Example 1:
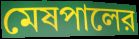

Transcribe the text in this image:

মেষপালের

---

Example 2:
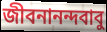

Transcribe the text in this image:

জীবনানন্দবাবু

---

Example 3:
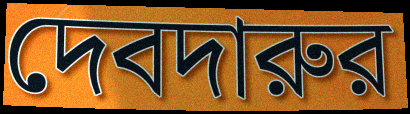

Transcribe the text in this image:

দেবদারুর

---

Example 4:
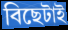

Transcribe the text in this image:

বিছেটাই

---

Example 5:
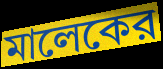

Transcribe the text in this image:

মালেকের